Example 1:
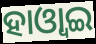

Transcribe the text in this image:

ହାଓ୍ୱାଇ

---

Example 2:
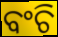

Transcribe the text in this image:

ବଂଚି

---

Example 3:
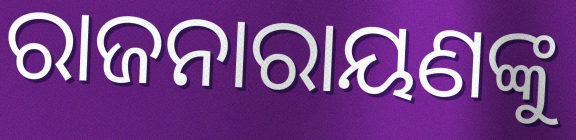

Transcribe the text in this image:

ରାଜନାରାୟଣଙ୍କୁ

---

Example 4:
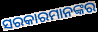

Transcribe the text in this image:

ସରକାରମାନଙ୍କର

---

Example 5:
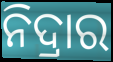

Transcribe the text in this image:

ନିଦ୍ରାର